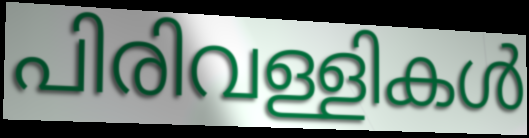
പിരിവള്ളികൾ